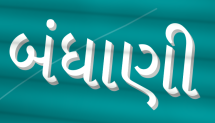
બંધાણી